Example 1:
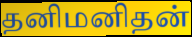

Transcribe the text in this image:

தனிமனிதன்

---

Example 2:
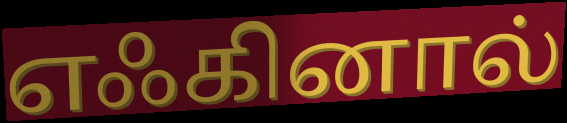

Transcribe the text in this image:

எஃகினால்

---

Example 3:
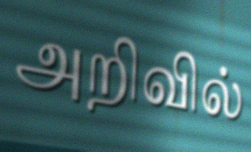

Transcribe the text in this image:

அறிவில்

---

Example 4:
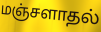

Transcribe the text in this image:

மஞ்சளாதல்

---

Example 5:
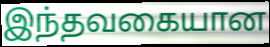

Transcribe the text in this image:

இந்தவகையான